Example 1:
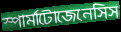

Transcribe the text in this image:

স্পার্মাটোজেনেসিস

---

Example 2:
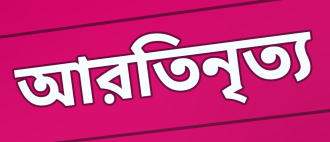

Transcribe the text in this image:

আরতিনৃত্য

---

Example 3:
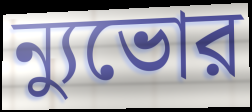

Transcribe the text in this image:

ন্যুভোর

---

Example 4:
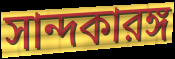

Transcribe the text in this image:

সান্দকারঙ্গ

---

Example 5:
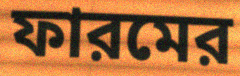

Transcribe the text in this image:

ফারমের